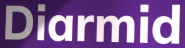
Diarmid